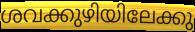
ശവക്കുഴിയിലേക്കു